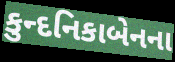
કુન્દનિકાબેનના